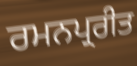
ਰਮਨਪ੍ਰਰੀਤ